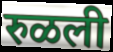
रुळली